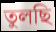
তুলছি